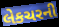
લેકચરની